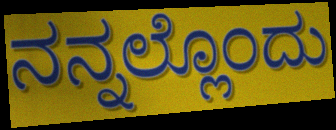
ನನ್ನಲ್ಲೊಂದು